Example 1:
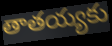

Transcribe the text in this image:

తాతయ్యకు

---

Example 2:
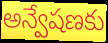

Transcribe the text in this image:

అన్వేషణకు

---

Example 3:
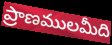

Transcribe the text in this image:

ప్రాణములమీది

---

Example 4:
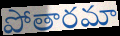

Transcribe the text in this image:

పోతారమా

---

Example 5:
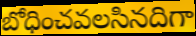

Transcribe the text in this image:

బోధించవలసినదిగా